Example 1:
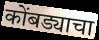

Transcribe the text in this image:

कोंबड्याचा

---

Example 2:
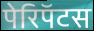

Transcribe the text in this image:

पेरिपॅटस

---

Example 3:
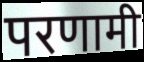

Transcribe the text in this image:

परणामी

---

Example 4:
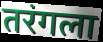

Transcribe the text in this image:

तरंगला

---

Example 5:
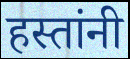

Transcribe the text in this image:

हस्तांनी